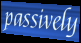
passively